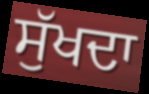
ਸੁੱਖਦਾ